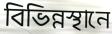
বিভিন্নস্থানে